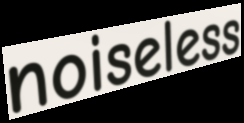
noiseless